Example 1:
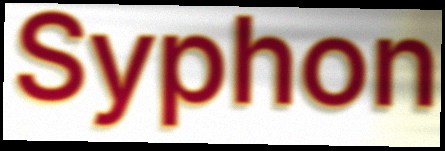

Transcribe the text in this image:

Syphon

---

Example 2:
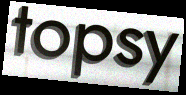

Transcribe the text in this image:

topsy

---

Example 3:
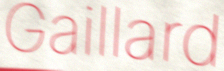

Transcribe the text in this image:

Gaillard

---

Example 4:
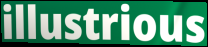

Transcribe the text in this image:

illustrious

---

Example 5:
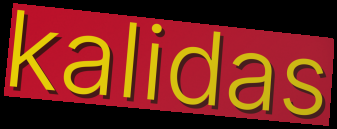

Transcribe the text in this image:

kalidas